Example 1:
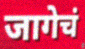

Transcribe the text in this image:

जागेचं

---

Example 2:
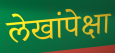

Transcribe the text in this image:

लेखांपेक्षा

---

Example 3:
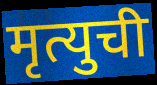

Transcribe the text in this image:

मृत्युची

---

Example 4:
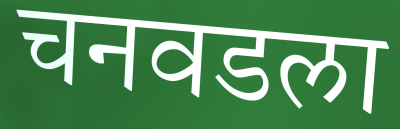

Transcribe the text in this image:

चनवडला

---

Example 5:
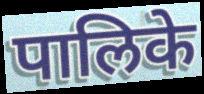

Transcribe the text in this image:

पालिके